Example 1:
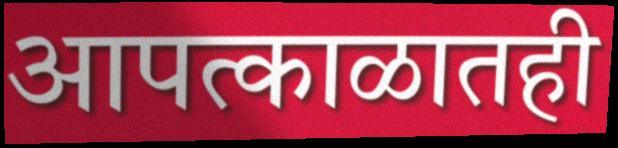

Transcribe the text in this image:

आपत्काळातही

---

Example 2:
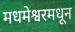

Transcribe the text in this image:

मधमेश्वरमधून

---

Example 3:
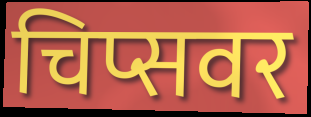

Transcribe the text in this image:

चिप्सवर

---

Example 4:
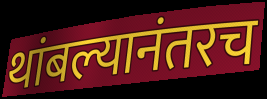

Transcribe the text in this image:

थांबल्यानंतरच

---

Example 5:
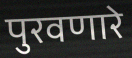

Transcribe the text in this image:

पुरवणारे